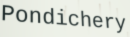
Pondichery